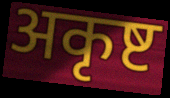
अकृष्ट